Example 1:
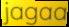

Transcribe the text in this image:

jagaa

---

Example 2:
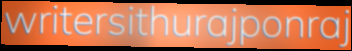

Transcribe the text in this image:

writersithurajponraj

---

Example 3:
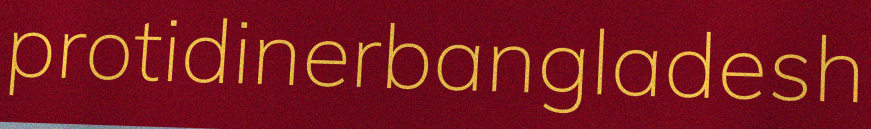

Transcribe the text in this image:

protidinerbangladesh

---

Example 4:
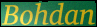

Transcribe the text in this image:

Bohdan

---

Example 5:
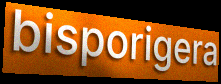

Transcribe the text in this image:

bisporigera